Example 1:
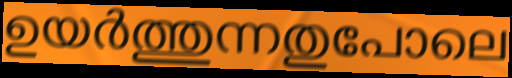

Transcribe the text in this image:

ഉയർത്തുന്നതുപോലെ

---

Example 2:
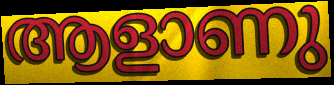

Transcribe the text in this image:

ആളാണു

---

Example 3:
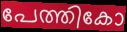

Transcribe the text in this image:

പേത്തികോ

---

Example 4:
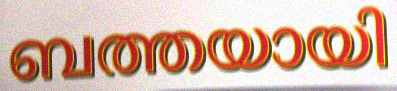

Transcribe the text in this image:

ബത്തയായി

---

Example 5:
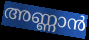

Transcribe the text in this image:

അണ്ണാൻ